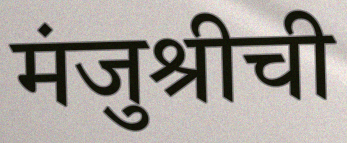
मंजुश्रीची